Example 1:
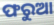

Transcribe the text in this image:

ଫରୁଆ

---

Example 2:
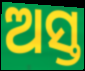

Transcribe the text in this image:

ଅସ୍ତ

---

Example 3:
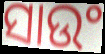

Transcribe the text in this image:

ସାଉଂ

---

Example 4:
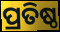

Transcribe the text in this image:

ପ୍ରତିଷ୍ଠ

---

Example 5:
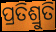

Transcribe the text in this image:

ପ୍ରତିଶ୍ରୁତି